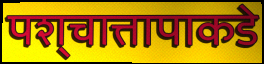
पश्चात्तापाकडे